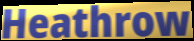
Heathrow